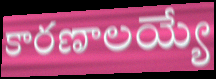
కారణాలయ్యే